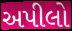
અપીલો